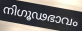
നിഗൂഢഭാവം